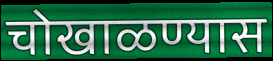
चोखाळण्यास